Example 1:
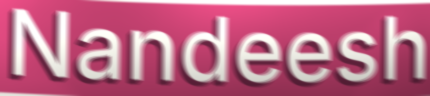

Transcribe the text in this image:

Nandeesh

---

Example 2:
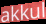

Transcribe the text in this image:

akkul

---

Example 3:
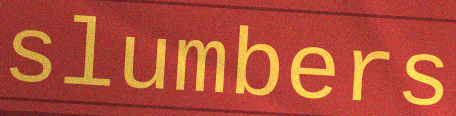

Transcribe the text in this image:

slumbers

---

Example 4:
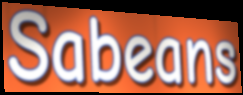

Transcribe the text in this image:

Sabeans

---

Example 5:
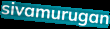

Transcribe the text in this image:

sivamurugan